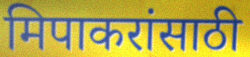
मिपाकरांसाठी